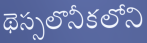
థెస్సలొనీకలోని